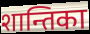
शान्तिका